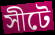
সীটে